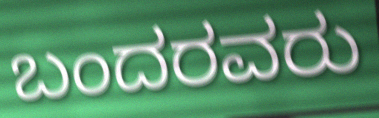
ಬಂದರವರು